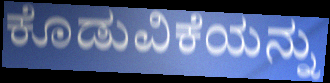
ಕೊಡುವಿಕೆಯನ್ನು